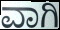
ವಾಗಿ